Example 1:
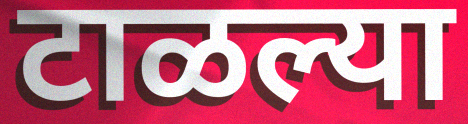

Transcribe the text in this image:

टाळल्या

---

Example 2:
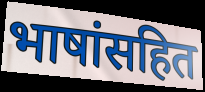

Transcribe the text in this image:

भाषांसहित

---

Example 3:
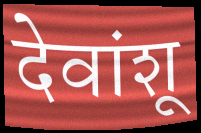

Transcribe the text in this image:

देवांशू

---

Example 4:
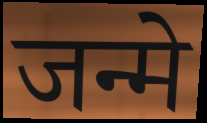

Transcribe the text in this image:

जन्मे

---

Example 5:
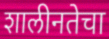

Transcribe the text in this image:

शालीनतेचा